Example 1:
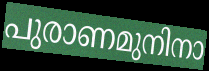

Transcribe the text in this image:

പുരാണമുനിനാ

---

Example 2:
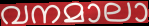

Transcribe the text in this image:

വനമാലാ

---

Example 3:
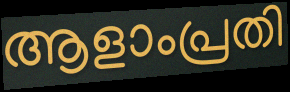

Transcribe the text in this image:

ആളാംപ്രതി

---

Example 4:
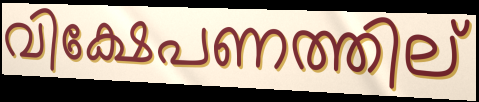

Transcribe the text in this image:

വിക്ഷേപണത്തില്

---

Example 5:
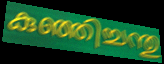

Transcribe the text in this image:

കുഞ്ഞിച്ചന്തു